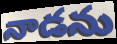
నాడను